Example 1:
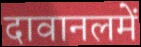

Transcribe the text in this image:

दावानलमें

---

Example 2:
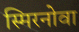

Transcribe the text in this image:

स्मिरनोवा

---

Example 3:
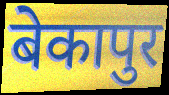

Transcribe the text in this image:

बेकापुर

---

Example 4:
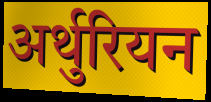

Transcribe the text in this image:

अर्थुरियन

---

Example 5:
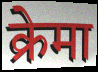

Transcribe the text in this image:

क्रेमा